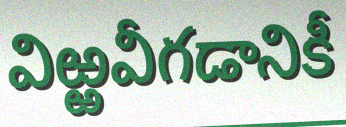
విఱ్ఱవీగడానికీ